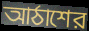
আঠাশের